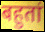
बहुतां